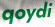
qoydi